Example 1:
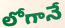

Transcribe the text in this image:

లోగానే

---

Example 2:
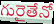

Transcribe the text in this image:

గురైతేనో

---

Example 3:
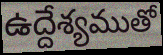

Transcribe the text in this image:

ఉద్దేశ్యముతో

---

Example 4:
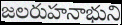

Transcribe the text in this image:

జలరుహనాభుని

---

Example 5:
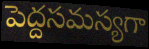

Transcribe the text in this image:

పెద్దసమస్యగా